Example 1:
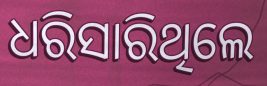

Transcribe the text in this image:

ଧରିସାରିଥିଲେ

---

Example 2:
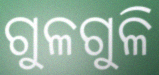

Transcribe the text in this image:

ଗୁଳଗୁଳି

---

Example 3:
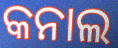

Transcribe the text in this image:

କନାଲ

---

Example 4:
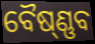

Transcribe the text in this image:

ବୈଷ୍ଣ୍ଣବ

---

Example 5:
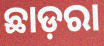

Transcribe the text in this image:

ଛାଡ଼ରା